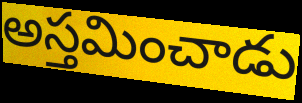
అస్తమించాడు